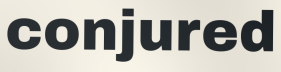
conjured